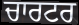
ਚਾਰਟਰ